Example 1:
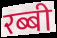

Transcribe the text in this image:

रब्बी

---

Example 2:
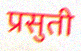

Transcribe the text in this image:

प्रसुती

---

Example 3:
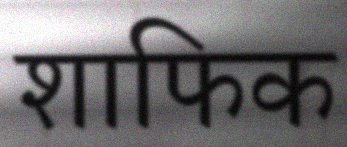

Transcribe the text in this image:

शाफिक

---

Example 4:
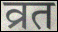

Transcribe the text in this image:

व्रत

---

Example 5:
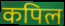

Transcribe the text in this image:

कपिल